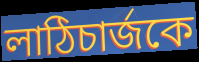
লাঠিচার্জকে